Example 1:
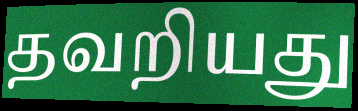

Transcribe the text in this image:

தவறியது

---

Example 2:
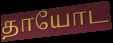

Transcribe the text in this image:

தாயோட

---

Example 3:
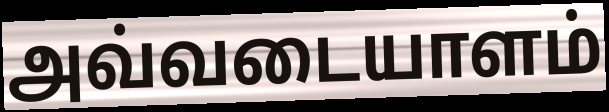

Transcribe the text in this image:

அவ்வடையாளம்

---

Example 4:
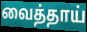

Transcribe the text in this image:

வைத்தாய்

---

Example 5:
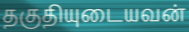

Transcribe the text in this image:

தகுதியுடையவன்